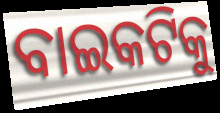
ବାଇକଟିକୁ